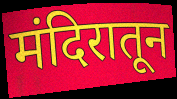
मंदिरातून